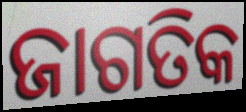
ଜାଗତିକ